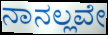
ನಾನಲ್ಲವೇ